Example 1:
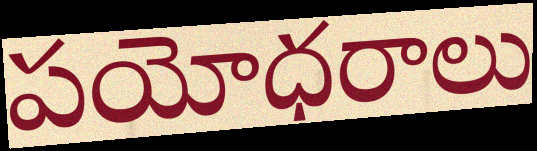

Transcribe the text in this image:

పయోధరాలు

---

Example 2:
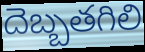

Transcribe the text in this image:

దెబ్బతగిలి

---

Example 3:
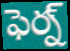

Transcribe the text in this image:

ఫెర్న్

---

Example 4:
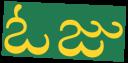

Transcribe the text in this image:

ఓజు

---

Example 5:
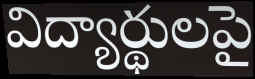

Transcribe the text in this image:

విద్యార్థులపై